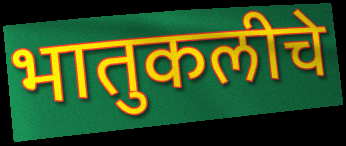
भातुकलीचे